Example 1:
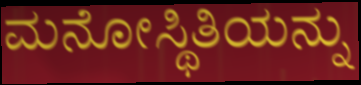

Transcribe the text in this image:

ಮನೋಸ್ಥಿತಿಯನ್ನು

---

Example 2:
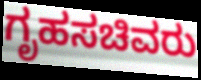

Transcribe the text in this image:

ಗೃಹಸಚಿವರು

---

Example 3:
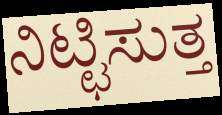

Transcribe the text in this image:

ನಿಟ್ಟಿಸುತ್ತ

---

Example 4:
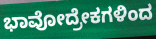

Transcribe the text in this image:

ಭಾವೋದ್ರೇಕಗಳಿಂದ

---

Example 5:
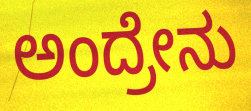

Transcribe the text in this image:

ಅಂದ್ರೇನು